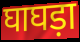
घाघड़ा